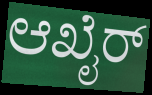
ಆಖೈರ್